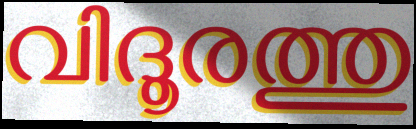
വിദൂരത്തു